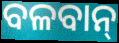
ବଳବାନ୍